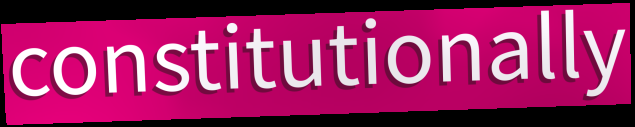
constitutionally